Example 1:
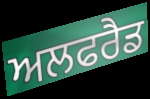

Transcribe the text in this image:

ਅਲਫਰੈਡ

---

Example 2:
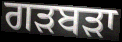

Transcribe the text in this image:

ਗੜਬੜਾ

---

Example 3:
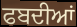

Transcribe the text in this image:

ਫਬਦੀਆਂ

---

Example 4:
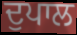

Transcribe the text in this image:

ਦੁਪਾਲ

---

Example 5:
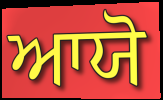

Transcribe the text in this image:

ਆਯੋ